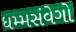
ધમ્મસંવેગો